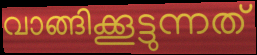
വാങ്ങിക്കൂട്ടുന്നത്